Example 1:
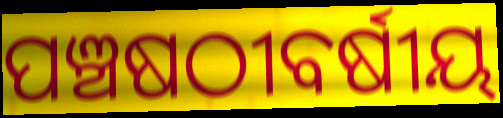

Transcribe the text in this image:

ପଞ୍ଚଷଠୀବର୍ଷୀୟ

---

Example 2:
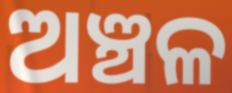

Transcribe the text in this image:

ଅଞ୍ଚଳ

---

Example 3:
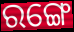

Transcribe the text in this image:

ରଙ୍ଗେ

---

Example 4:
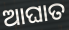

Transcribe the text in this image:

ଆଘାତ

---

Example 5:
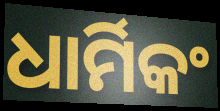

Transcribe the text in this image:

ଧାର୍ମିକଂ